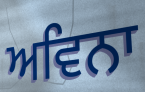
ਅਵਿਨਾ